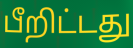
பீறிட்டது